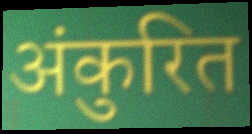
अंकुरित